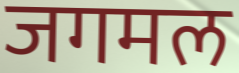
जगमल